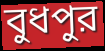
বুধপুর